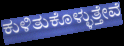
ಕುಳಿತುಕೊಳ್ಳುತ್ತೇವೆ